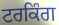
ਟਰਕਿੰਗ